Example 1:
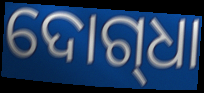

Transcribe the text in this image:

ଦୋଗ୍‌ଧା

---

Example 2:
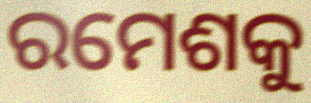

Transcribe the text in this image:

ରମେଶକୁ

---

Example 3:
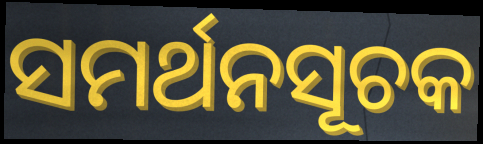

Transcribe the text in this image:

ସମର୍ଥନସୂଚକ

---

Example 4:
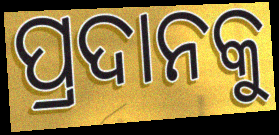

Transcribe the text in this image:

ପ୍ରଦାନକୁ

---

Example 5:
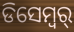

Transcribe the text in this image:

ଡିସେମ୍ବର୍